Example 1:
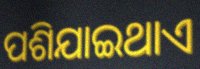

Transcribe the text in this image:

ପଶିଯାଇଥାଏ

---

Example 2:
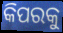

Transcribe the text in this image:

କିପରକୁ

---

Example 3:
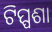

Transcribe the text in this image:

ଟିପ୍ପଶା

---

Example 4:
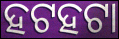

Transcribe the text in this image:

ହଟହଟା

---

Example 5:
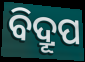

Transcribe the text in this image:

ବିଦ୍ରୂପ